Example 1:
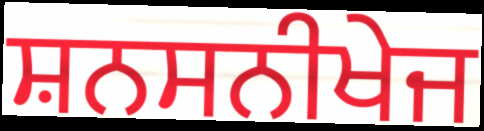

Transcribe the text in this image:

ਸ਼ਨਸਨੀਖੇਜ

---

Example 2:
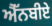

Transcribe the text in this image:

ਐੱਨਬੀਏ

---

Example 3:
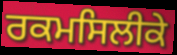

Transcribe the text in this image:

ਰਕਮਸਿਲੀਕੇ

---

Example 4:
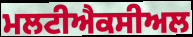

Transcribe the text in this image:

ਮਲਟੀਐਕਸੀਅਲ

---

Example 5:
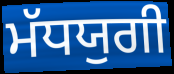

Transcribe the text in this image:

ਮੱਧਯੁਗੀ